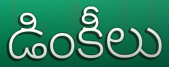
డింకీలు